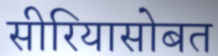
सीरियासोबत